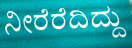
ನೀರೆರೆದಿದ್ದು